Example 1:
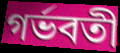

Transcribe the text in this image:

গর্ভবতী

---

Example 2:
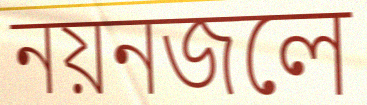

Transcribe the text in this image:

নয়নজলে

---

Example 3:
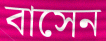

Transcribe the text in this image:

বাসেন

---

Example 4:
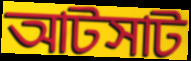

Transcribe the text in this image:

আটসাট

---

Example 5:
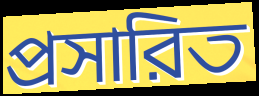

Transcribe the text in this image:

প্রসারিত